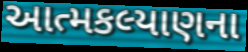
આત્મકલ્યાણના